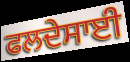
ਫਲਦੇਸਾਈ